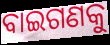
ବାଇଗଣକୁ